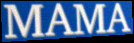
MAMA